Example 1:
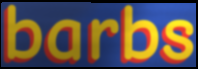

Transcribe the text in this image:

barbs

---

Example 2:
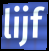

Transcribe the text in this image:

lijf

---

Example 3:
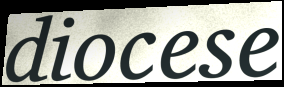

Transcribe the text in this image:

diocese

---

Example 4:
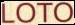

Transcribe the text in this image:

LOTO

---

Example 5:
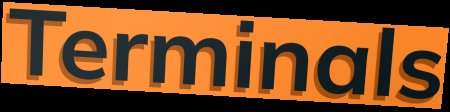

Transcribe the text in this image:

Terminals